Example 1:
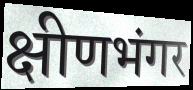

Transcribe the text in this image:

क्षीणभंगर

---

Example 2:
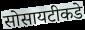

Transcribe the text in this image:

सोसायटीकडे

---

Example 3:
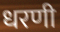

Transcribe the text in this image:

धरणी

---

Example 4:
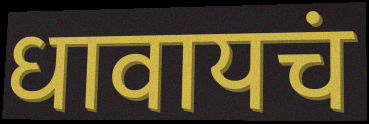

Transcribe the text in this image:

धावायचं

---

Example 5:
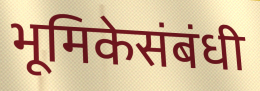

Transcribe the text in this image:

भूमिकेसंबंधी